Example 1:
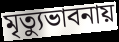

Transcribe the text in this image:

মৃত্যুভাবনায়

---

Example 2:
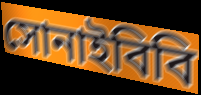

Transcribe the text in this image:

সোনাইবিবি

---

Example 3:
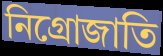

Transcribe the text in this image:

নিগ্রোজাতি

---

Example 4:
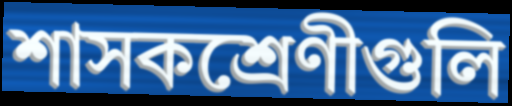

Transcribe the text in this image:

শাসকশ্রেণীগুলি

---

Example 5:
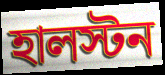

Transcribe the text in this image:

হালস্টন